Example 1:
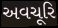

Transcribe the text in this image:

અવચૂરિ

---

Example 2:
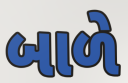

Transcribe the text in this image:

બાળે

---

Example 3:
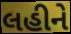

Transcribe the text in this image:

લહીને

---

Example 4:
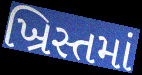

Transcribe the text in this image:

ખ્રિસ્તમાં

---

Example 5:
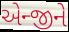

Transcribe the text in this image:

એન્જીને